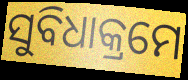
ସୁବିଧାକ୍ରମେ